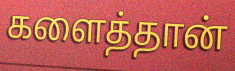
களைத்தான்